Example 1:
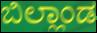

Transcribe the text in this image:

ಬಿಲ್ಲಾಂಡ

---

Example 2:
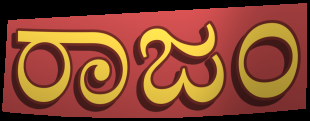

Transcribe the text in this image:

ರಾಜಂ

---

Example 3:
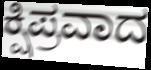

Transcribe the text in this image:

ಕ್ಷಿಪ್ರವಾದ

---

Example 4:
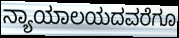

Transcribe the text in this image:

ನ್ಯಾಯಾಲಯದವರೆಗೂ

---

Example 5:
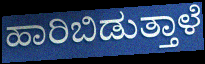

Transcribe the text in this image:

ಹಾರಿಬಿಡುತ್ತಾಳೆ